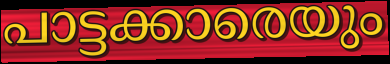
പാട്ടക്കാരെയും